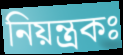
নিয়ন্ত্রকঃ